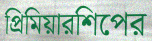
প্রিমিয়ারশিপের